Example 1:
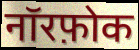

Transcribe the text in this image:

नॉरफ़ोक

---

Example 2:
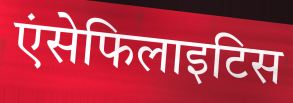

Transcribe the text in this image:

एंसेफिलाइटिस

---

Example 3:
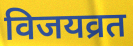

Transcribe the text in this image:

विजयव्रत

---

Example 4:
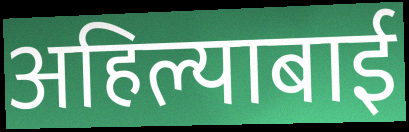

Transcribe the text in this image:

अहिल्याबाई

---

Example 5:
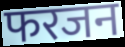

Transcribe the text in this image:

फरजन